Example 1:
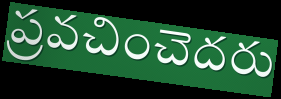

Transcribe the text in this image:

ప్రవచించెదరు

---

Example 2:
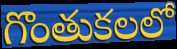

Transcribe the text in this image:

గొంతుకలలో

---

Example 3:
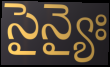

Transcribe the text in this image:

సైన్యైః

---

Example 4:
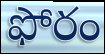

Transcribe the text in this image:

ఫోరం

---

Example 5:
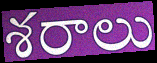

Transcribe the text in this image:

శరాలు